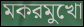
মকরমুখো